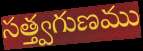
సత్త్వగుణము